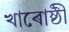
খাৰোষ্ঠী